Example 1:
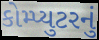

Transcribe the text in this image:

કોમ્પ્યુટરનું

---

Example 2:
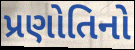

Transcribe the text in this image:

પ્રણોતિનો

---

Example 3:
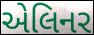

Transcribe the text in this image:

એલિનર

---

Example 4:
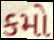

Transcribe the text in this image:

કમો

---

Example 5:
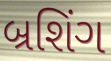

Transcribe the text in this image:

બ્રશિંગ